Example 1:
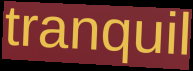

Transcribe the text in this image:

tranquil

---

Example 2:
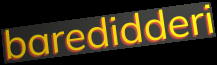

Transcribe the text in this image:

baredidderi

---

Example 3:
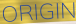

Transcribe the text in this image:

ORIGIN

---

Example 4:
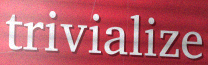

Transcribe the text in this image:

trivialize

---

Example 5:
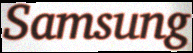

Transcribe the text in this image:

Samsung